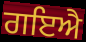
ਗਇਐ